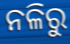
ନଳିରୁ